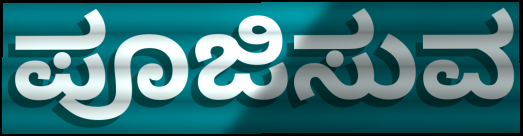
ಪೂಜಿಸುವ